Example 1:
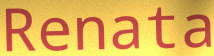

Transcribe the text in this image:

Renata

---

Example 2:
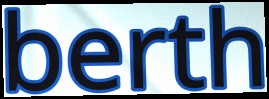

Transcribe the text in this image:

berth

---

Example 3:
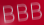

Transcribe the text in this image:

BBB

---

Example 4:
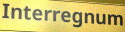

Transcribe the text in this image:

Interregnum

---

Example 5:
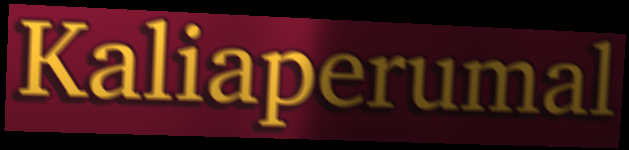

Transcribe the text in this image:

Kaliaperumal